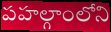
పహల్గాంలోని